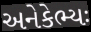
અનેકેભ્યઃ